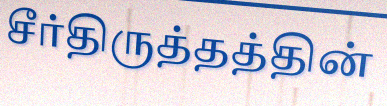
சீர்திருத்தத்தின்